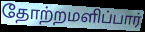
தோற்றமளிப்பார்